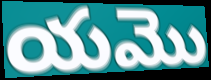
యమొ